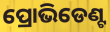
ପ୍ରୋଭିଡେଣ୍ଟ